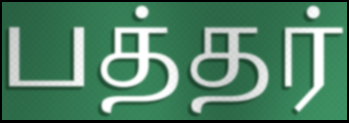
பத்தர்